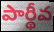
పార్థీవ